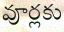
వూర్లకు